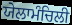
ਯੇਲਾਮੰਚਿਲੀ